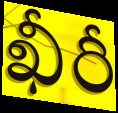
ఖీరీ